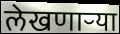
लेखणाऱ्या